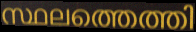
സ്ഥലത്തെത്തി